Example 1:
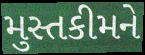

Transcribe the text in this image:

મુસ્તકીમને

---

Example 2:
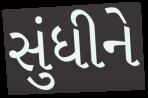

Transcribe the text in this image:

સુંધીને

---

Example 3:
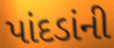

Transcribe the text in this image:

પાંદડાંની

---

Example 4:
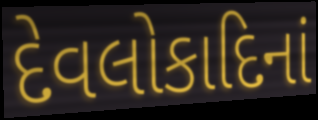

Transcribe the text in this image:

દેવલોકાદિનાં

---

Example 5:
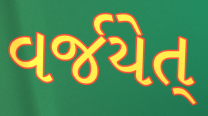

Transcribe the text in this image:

વર્જયેત્